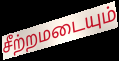
சீற்றமடையும்